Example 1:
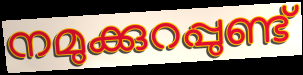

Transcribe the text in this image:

നമുക്കുറപ്പുണ്ട്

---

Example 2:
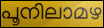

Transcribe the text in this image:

പൂനിലാമഴ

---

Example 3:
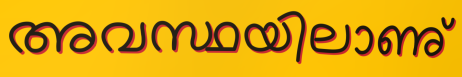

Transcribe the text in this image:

അവസ്ഥയിലാണു്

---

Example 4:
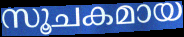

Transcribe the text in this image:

സൂചകമായ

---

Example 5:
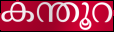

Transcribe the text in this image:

കന്തൂറ